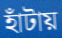
হাঁটায়